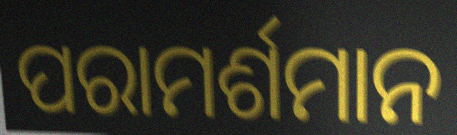
ପରାମର୍ଶମାନ